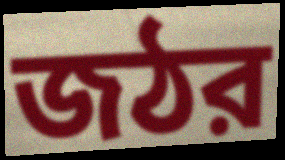
জঠর